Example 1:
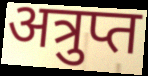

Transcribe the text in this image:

अत्रुप्त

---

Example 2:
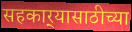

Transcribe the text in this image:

सहकार्यासाठीच्या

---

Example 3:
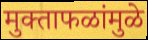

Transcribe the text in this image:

मुक्ताफळांमुळे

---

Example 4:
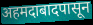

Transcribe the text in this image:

अहमदाबादपासून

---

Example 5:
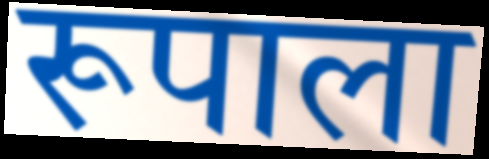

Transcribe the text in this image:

रूपाला